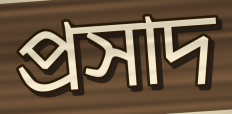
প্রসাদ